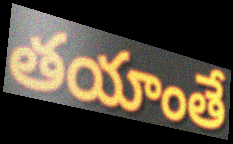
తయాంతే